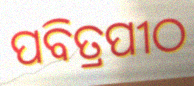
ପବିତ୍ରପୀଠ